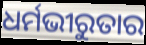
ଧର୍ମଭୀରୁତାର